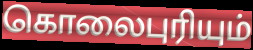
கொலைபுரியும்